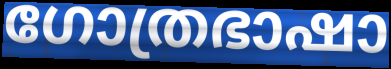
ഗോത്രഭാഷാ